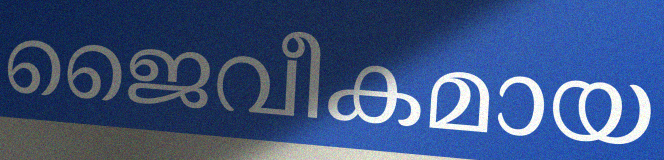
ജൈവീകമായ